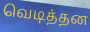
வெடித்தன